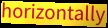
horizontally